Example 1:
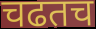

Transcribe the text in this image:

चढतच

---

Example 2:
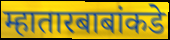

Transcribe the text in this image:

म्हातारबाबांकडे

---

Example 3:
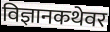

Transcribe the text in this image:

विज्ञानकथेवर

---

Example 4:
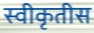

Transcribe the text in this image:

स्वीकृतीस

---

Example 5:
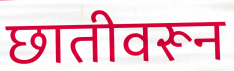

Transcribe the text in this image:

छातीवरून